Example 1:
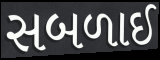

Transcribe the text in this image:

સબળાઈ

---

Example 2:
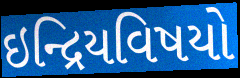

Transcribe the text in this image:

ઇન્દ્રિયવિષયો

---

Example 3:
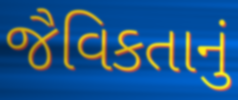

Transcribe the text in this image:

જૈવિકતાનું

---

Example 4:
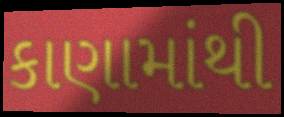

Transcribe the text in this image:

કાણામાંથી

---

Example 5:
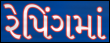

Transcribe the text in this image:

રેપિંગમાં